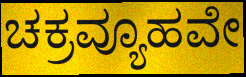
ಚಕ್ರವ್ಯೂಹವೇ